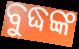
ବୁଦ୍ଧଙ୍କ